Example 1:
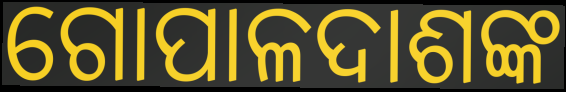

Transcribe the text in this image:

ଗୋପାଳଦାଶଙ୍କ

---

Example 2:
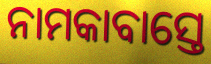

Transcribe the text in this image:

ନାମକାବାସ୍ତେ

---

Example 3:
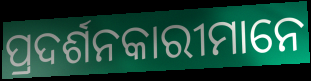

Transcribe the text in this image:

ପ୍ରଦର୍ଶନକାରୀମାନେ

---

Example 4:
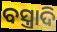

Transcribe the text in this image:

ବସ୍ତ୍ରାଦି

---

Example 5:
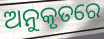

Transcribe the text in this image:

ଅନୁକୃତରେ